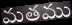
మతము